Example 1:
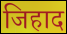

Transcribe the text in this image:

जिहाद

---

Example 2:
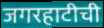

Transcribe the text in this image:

जगरहाटीची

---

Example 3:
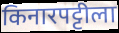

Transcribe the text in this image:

किनारपट्टीला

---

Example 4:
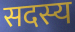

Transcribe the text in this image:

सदस्‍य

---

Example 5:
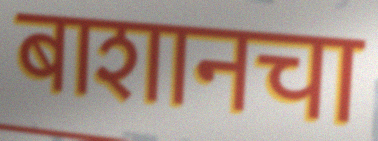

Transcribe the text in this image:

बाशानचा